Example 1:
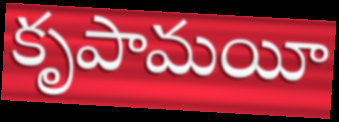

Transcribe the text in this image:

కృపామయీ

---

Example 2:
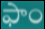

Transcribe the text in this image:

ఫాం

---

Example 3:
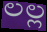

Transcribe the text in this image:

లల్ల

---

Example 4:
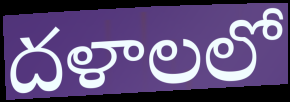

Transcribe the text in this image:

దళాలలో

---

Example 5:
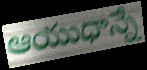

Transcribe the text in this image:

ఆయుధాన్నే